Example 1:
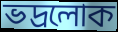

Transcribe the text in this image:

ভদ্ৰলোক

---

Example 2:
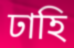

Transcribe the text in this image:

ঢাহি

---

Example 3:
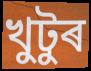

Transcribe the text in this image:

খুটুৰ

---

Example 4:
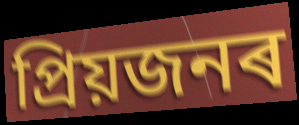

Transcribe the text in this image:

প্ৰিয়জনৰ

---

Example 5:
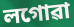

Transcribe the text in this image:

লগোৱা